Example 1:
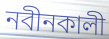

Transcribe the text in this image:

নবীনকালী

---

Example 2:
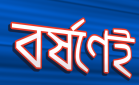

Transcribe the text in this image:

বর্ষণেই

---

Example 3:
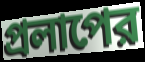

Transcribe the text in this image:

প্রলাপের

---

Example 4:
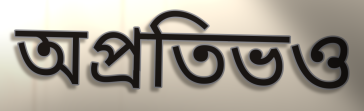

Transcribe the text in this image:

অপ্রতিভও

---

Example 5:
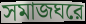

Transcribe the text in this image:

সমাজঘরে